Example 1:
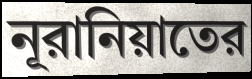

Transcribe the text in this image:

নূরানিয়াতের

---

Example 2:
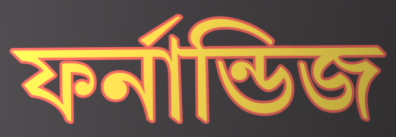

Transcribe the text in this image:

ফর্নান্ডিজ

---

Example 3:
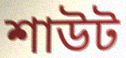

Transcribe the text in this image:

শাউট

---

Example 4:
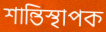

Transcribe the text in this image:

শান্তিস্থাপক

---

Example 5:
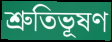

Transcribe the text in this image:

শ্রুতিভূষণ